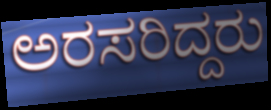
ಅರಸರಿದ್ದರು